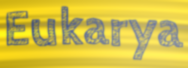
Eukarya